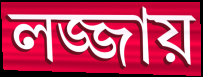
লজ্জায়